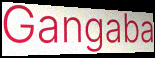
Gangaba